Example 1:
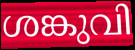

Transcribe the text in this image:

ശങ്കുവി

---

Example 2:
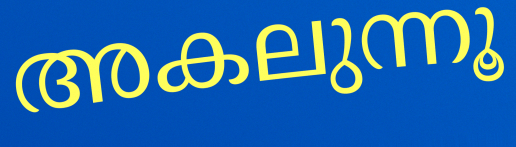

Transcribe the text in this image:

അകലുന്നൂ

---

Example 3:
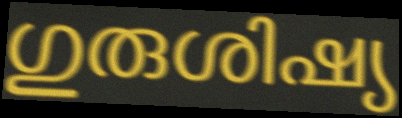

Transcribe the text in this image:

ഗുരുശിഷ്യ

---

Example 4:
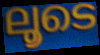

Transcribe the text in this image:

ലൂടെ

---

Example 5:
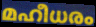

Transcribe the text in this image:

മഹീധരം